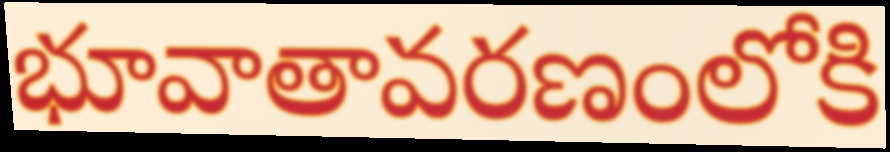
భూవాతావరణంలోకి